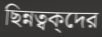
ছিন্নত্বক্দের